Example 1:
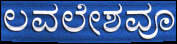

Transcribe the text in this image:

ಲವಲೇಶವೂ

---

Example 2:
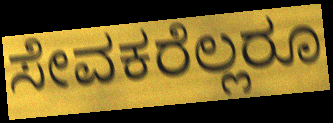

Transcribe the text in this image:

ಸೇವಕರೆಲ್ಲರೂ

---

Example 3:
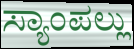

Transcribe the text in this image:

ಸ್ಯಾಂಪಲ್ಲು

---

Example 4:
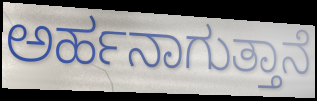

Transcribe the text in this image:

ಅರ್ಹನಾಗುತ್ತಾನೆ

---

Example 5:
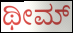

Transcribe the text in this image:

ಥೀಮ್